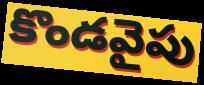
కొండవైపు